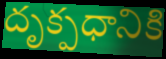
దృక్పధానికి